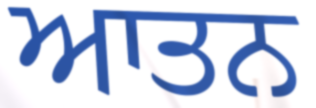
ਆਤਨ